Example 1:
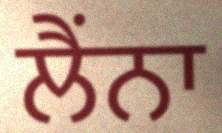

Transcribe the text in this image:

ਲੈਂਨਾ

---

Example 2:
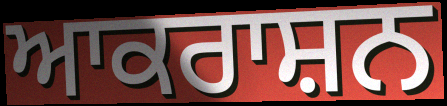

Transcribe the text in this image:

ਆਕਰਾਸ਼ਨ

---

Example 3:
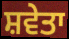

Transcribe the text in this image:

ਸ਼ਵੇਤਾ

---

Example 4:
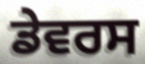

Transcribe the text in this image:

ਡੇਵਰਸ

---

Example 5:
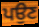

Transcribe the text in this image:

ਪਉਣ